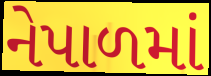
નેપાળમાં